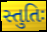
સ્તુતિઃ